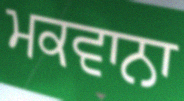
ਮਕਵਾਨਾ